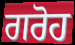
ਗਰੋਹ